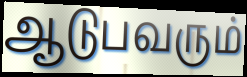
ஆடுபவரும்